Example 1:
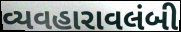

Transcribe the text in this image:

વ્યવહારાવલંબી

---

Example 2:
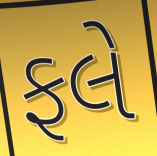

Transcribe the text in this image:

ફલે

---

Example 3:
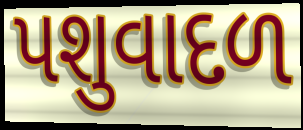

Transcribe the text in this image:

પશુવાદળ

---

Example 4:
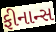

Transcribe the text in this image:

ફીનાન્સ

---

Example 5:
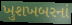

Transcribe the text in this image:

ખુશખબરનાં